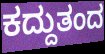
ಕದ್ದುತಂದ